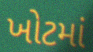
ખોટમાં